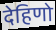
देहिणो